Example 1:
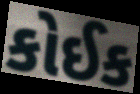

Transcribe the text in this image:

કોઈક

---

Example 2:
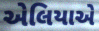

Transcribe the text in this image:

એલિયાએ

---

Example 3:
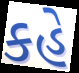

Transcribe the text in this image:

કહે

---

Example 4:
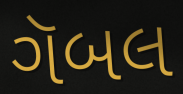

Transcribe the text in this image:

ગૅબલ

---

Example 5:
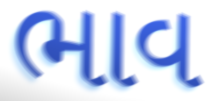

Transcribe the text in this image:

ભાવ